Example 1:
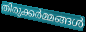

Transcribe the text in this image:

തിരുക്കർമ്മങ്ങൾ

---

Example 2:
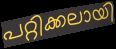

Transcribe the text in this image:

പറ്റിക്കലായി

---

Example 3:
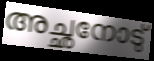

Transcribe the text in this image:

അച്ഛനോടു്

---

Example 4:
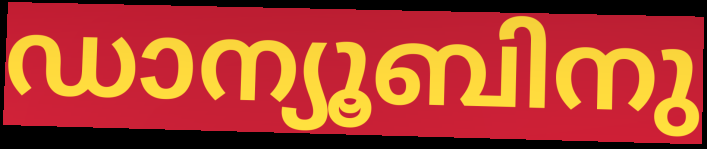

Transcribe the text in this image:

ഡാന്യൂബിനു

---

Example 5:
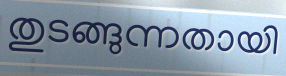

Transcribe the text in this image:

തുടങ്ങുന്നതായി